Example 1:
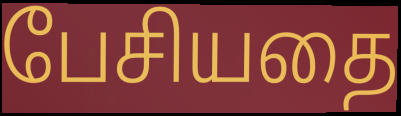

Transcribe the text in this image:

பேசியதை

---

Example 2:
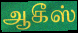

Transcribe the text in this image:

ஆகீஸ்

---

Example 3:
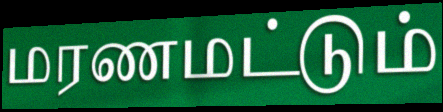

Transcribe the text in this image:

மரணமட்டும்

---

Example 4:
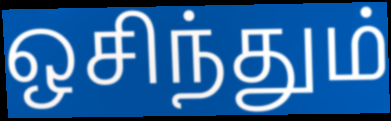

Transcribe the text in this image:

ஒசிந்தும்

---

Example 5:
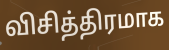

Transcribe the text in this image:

விசித்திரமாக